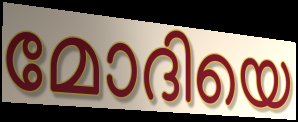
മോദിയെ